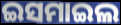
ଇସମାଇଲ